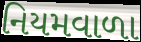
નિયમવાળા